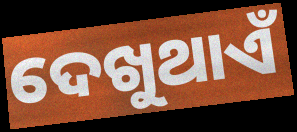
ଦେଖୁଥାଏଁ